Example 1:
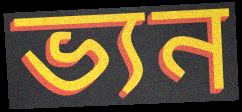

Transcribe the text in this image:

ভ্যন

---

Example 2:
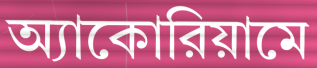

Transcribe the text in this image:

অ্যাকোরিয়ামে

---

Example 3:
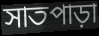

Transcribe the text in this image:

সাতপাড়া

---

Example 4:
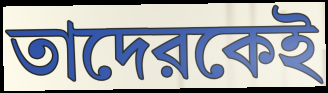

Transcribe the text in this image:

তাদেরকেই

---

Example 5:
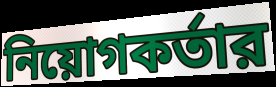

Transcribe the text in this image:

নিয়োগকর্তার